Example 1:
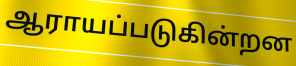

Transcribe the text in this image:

ஆராயப்படுகின்றன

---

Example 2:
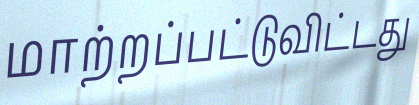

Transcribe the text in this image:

மாற்றப்பட்டுவிட்டது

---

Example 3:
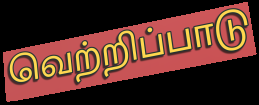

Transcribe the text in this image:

வெற்றிப்பாடு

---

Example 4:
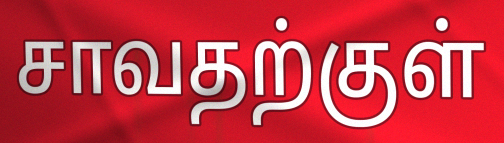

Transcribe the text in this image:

சாவதற்குள்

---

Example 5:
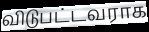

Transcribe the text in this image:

விடுபட்டவராக